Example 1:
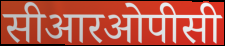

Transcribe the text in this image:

सीआरओपीसी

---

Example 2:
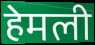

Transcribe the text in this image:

हेमली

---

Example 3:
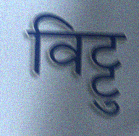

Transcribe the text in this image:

विट्टु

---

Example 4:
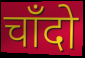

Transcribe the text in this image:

चाँदो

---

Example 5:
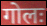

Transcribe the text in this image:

गोलः